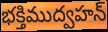
భక్తిముద్వహన్